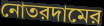
নোতরদামের